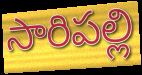
సారిపల్లి